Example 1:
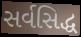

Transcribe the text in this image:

સર્વસિદ્ધ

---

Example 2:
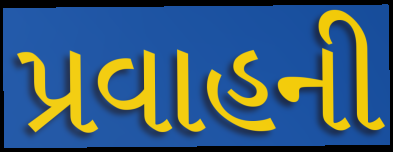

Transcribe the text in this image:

પ્રવાહની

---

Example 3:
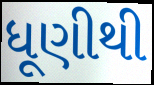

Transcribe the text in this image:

ધૂણીથી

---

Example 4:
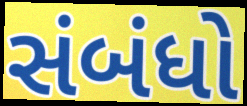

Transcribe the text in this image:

સંબંધો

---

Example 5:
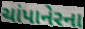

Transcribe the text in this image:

ચાંપાનેરના